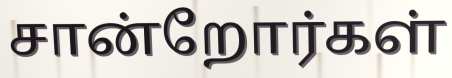
சான்றோர்கள்